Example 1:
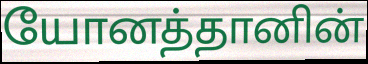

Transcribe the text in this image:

யோனத்தானின்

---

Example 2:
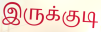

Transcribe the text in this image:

இருக்குடி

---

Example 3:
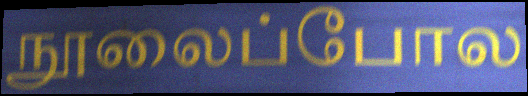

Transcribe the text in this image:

நூலைப்போல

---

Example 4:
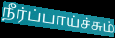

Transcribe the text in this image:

நீர்ப்பாய்ச்சும்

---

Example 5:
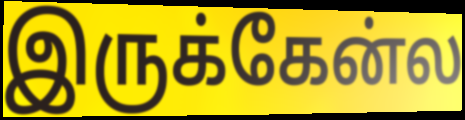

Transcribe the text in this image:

இருக்கேன்ல